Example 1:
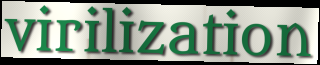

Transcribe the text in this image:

virilization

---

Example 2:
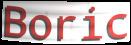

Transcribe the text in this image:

Boric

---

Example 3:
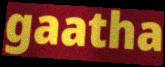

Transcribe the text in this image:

gaatha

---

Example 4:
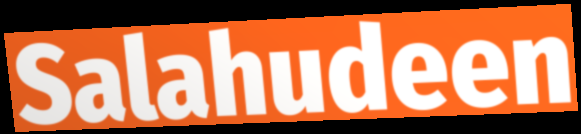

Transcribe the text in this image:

Salahudeen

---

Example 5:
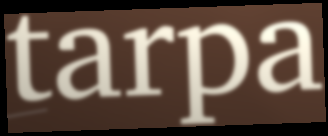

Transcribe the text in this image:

tarpa